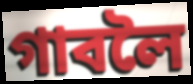
গাবলৈ